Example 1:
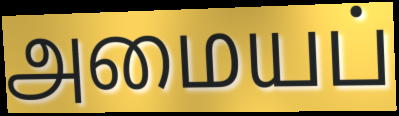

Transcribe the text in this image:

அமையப்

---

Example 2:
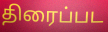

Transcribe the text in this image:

திரைப்பட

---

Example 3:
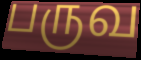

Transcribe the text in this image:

பருவ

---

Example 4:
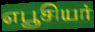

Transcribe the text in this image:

எபூசியர்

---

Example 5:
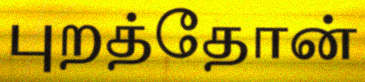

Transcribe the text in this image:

புறத்தோன்